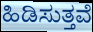
ಹಿಡಿಸುತ್ತವೆ